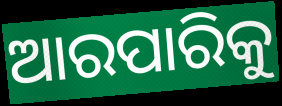
ଆରପାରିକୁ